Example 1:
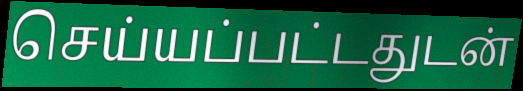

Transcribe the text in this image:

செய்யப்பட்டதுடன்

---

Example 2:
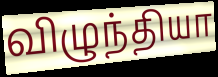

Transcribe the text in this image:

விழுந்தியா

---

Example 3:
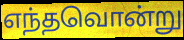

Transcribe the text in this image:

எந்தவொன்று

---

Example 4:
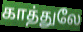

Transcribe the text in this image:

காத்துலே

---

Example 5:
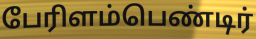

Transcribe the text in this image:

பேரிளம்பெண்டிர்